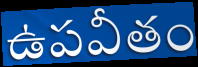
ఉపవీతం